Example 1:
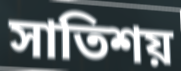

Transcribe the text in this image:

সাতিশয়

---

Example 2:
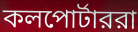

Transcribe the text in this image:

কলপোর্টাররা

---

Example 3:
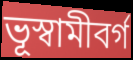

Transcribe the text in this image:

ভূস্বামীবর্গ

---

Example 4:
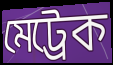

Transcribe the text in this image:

মেট্রেক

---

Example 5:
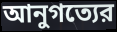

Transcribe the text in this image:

আনুগত্যের